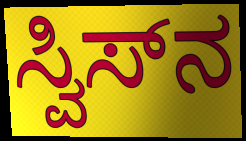
ಸ್ವಿಸ್‌ನ